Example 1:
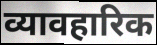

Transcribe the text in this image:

व्यावहारिक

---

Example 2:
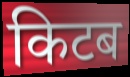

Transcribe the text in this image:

किटब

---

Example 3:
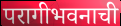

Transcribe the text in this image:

परागीभवनाची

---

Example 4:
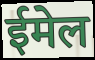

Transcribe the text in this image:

ईमेल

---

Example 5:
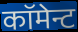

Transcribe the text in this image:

कॉमेन्ट